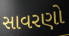
સાવરણો